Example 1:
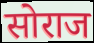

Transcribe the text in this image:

सोराज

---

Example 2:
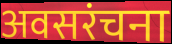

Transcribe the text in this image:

अवसरंचना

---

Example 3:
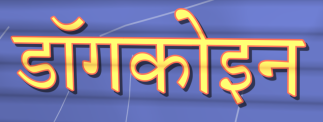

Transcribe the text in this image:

डॉगकोइन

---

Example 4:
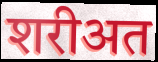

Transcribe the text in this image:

शरीअत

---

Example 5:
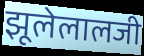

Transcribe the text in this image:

झूलेलालजी